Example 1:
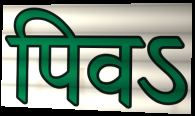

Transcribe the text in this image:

पिवऽ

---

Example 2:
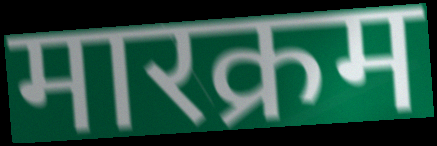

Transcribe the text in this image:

मारक्रम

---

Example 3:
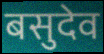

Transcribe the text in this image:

बसुदेव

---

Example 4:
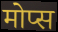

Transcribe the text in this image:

मोप्स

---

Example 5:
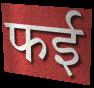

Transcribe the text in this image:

फई